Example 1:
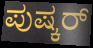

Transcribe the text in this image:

ಪುಷ್ಕರ್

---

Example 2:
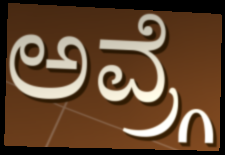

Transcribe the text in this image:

ಅವ್ರ್ಗೆ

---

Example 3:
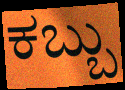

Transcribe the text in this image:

ಕಬ್ಬು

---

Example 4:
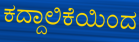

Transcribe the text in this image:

ಕದ್ದಾಲಿಕೆಯಿಂದ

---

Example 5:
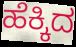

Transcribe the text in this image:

ಹೆಕ್ಕಿದ